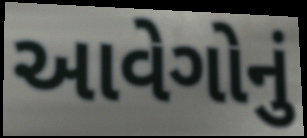
આવેગોનું